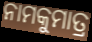
ନାମକୁମାତ୍ର